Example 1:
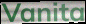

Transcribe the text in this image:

Vanita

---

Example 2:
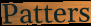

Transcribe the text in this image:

Patters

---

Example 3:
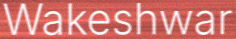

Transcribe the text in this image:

Wakeshwar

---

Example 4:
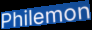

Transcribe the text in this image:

Philemon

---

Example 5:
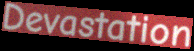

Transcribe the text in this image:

Devastation